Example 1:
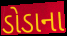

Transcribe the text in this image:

ડોડાના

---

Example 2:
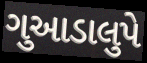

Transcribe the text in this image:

ગુઆડાલુપે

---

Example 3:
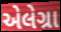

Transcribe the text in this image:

એલેગ્રા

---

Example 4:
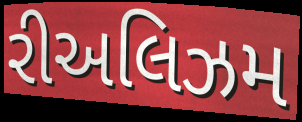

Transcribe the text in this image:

રીઅલિઝમ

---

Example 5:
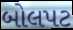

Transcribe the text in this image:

બોલપટ